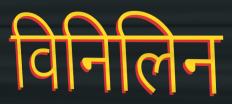
विनिलिन